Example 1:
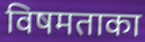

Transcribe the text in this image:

विषमताका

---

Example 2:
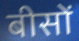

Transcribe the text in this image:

बीसों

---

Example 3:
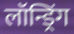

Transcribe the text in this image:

लॉन्ड्रिंग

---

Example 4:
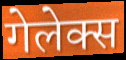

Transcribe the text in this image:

गेलेक्स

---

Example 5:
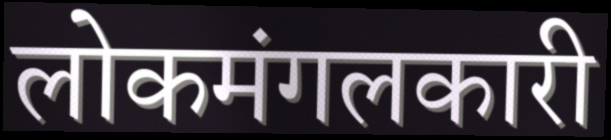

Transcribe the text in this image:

लोकमंगलकारी